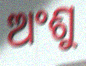
ଅଂଶୁ